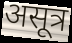
असूत्र